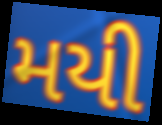
મયી